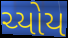
ચ્યોય